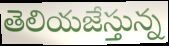
తెలియజేస్తున్న